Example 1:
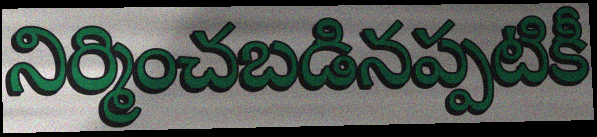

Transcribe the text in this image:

నిర్మించబడినప్పటికీ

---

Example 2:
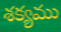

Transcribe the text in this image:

శక్యము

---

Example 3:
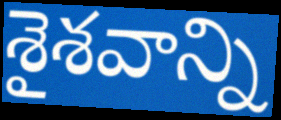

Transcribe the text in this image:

శైశవాన్ని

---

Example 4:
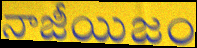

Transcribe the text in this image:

నాజీయిజం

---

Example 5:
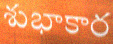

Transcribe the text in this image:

శుభాకార